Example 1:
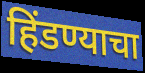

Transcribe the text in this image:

हिंडण्याचा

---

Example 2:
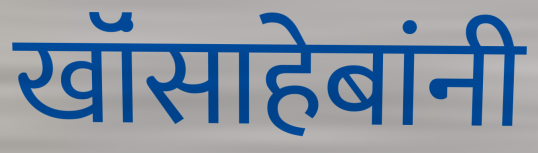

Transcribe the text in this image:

खॉंसाहेबांनी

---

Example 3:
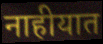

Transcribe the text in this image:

नाहीयात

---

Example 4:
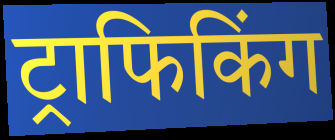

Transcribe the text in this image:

ट्राफिकिंग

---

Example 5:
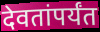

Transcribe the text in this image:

देवतांपर्यंत